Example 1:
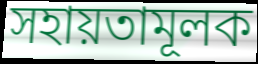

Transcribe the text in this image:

সহায়তামূলক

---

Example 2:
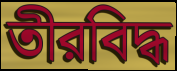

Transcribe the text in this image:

তীরবিদ্ধ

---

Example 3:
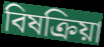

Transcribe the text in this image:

বিষক্রিয়া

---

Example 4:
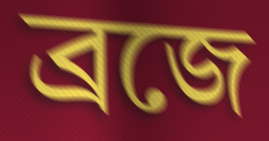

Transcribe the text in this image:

ব্রজে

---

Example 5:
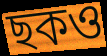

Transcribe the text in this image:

ছকও